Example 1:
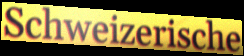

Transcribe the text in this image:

Schweizerische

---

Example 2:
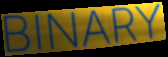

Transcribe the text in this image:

BINARY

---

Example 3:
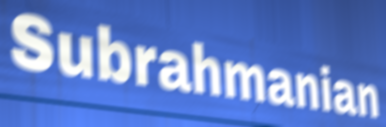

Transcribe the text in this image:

Subrahmanian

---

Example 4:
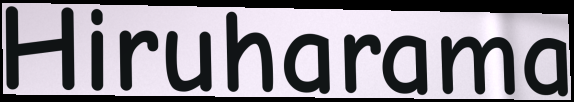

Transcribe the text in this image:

Hiruharama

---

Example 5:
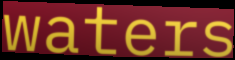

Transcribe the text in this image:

waters